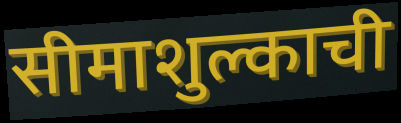
सीमाशुल्काची